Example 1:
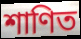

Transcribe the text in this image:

শাণিত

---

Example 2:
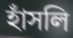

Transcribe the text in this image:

হাঁসলি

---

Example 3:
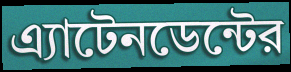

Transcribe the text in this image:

এ্যাটেনডেন্টের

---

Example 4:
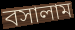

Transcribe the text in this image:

বসালাম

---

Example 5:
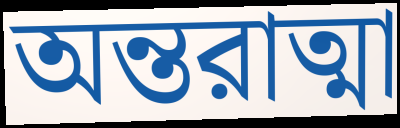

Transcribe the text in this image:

অন্তরাত্মা